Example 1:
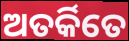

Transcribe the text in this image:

ଅତର୍କିତେ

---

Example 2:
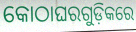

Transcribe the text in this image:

କୋଠାଘରଗୁଡ଼ିକରେ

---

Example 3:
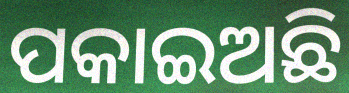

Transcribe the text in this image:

ପକାଇଅଛି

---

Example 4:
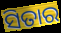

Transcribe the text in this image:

ସିତାର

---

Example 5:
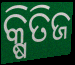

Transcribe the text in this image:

କ୍ଷିତିଜ